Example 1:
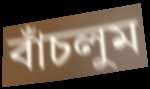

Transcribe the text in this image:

বাঁচলুম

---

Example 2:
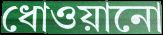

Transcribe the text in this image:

ধোওয়ানো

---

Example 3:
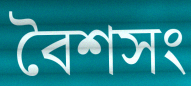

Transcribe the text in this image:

বৈশসং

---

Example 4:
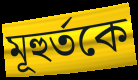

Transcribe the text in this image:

মূহুর্তকে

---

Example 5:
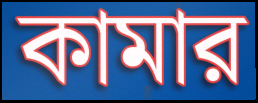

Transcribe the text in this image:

কামার